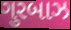
ગુરબાઝ